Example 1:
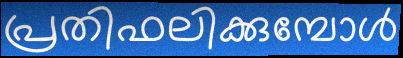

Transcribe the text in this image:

പ്രതിഫലിക്കുമ്പോൾ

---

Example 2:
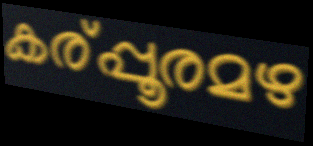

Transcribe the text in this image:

കര്പ്പൂരമഴ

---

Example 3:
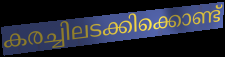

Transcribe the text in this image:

കരച്ചിലടക്കിക്കൊണ്ട്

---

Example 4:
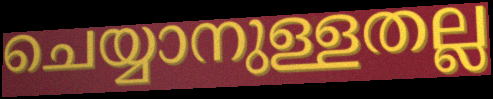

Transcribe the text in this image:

ചെയ്യാനുള്ളതല്ല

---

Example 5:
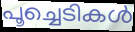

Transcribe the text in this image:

പൂച്ചെടികൾ